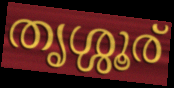
തൃശ്ശൂര്